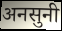
अनसुनी